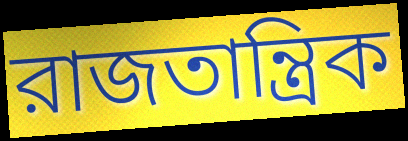
রাজতান্ত্রিক